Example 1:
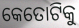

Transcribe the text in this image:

କେତୋଟିକୁ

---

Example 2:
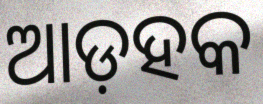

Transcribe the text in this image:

ଆଡ଼ହକ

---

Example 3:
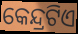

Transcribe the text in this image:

କେନ୍ଦ୍ରଟିଏ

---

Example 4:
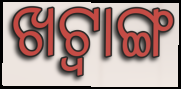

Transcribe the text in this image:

ଖଟ୍ଵାଙ୍ଗ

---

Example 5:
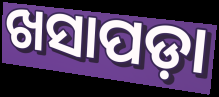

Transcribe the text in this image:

ଖସାପଡ଼ା